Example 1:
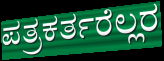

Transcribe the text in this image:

ಪತ್ರಕರ್ತರೆಲ್ಲರ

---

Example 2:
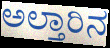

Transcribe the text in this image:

ಅಲ್ತಾರಿನ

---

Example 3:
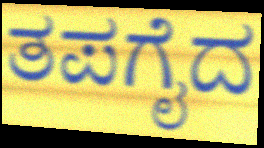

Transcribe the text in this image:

ತಪಗೈದ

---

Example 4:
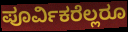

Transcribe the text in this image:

ಪೂರ್ವಿಕರೆಲ್ಲರೂ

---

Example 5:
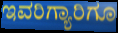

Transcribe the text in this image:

ಇವರಿಗ್ಯಾರಿಗೂ